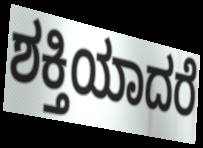
ಶಕ್ತಿಯಾದರೆ